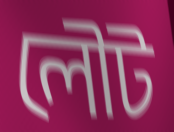
লৌট